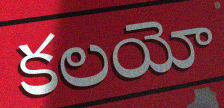
కలయో